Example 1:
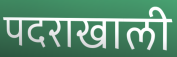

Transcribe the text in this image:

पदराखाली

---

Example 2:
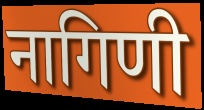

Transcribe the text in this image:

नागिणी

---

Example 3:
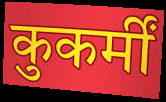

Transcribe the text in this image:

कुकर्मीं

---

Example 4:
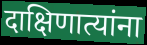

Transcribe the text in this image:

दाक्षिणात्यांना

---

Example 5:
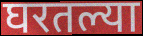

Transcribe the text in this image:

घरतल्या